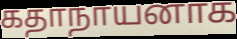
கதாநாயனாக